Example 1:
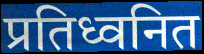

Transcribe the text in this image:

प्रतिध्वनित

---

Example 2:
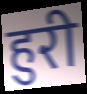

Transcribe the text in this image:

हुरी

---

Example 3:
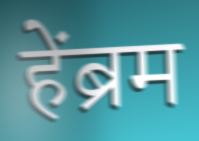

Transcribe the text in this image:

हेंब्रम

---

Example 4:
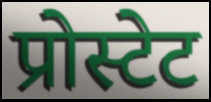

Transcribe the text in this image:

प्रोस्टेट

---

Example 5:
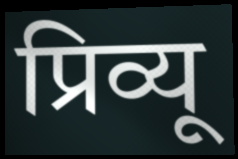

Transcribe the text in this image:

प्रिव्यू